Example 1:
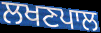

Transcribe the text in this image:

ਲਖਣਪਾਲ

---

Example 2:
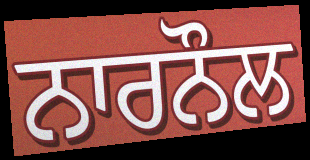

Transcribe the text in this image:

ਨਾਰਨੌਲ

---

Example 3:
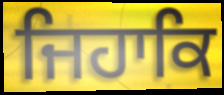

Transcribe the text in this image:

ਜਿਹਾਕਿ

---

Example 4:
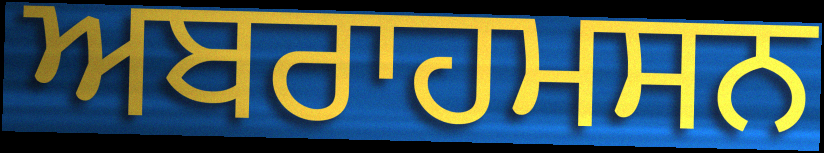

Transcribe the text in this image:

ਅਬਰਾਹਮਸਨ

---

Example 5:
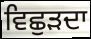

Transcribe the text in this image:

ਵਿਛੁੜਦਾ